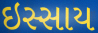
ઇસ્સાય